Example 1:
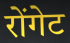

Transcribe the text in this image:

रोंगेट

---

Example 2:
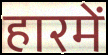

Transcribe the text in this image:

हारमें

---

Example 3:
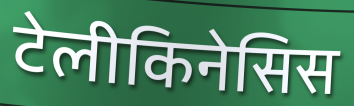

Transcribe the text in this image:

टेलीकिनेसिस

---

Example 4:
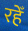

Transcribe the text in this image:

रहेँ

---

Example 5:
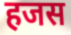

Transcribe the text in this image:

हजस